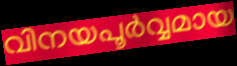
വിനയപൂർവ്വമായ